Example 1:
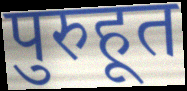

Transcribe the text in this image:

पुरुहूत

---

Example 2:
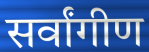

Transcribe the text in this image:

सर्वांगीण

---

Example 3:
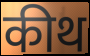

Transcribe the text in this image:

कीथ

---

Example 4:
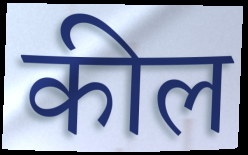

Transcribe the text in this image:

कील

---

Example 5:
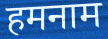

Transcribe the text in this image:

हमनाम